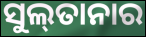
ସୁଲ୍‌ତାନାର